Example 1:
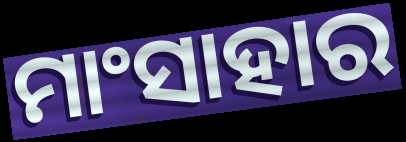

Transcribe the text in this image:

ମାଂସାହାର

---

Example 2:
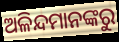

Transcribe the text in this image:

ଅଳିନ୍ଦମାନଙ୍କରୁ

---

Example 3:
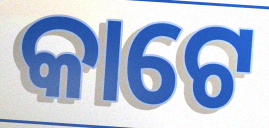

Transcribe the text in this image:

କାଟେ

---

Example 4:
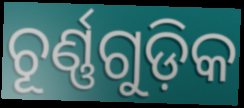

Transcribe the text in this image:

ଚୂର୍ଣ୍ଣଗୁଡ଼ିକ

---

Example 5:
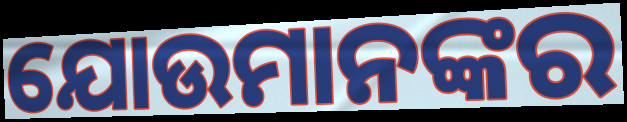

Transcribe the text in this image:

ଯୋଉମାନଙ୍କର